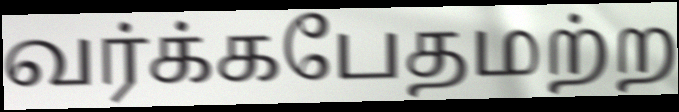
வர்க்கபேதமற்ற